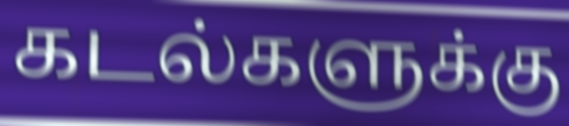
கடல்களுக்கு